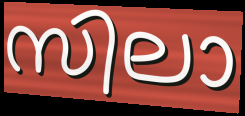
സിലാ